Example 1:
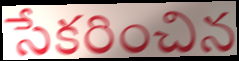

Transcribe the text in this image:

సేకరించిన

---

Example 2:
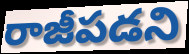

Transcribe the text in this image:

రాజీపడని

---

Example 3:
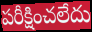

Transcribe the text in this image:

పరీక్షించలేదు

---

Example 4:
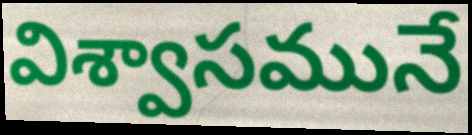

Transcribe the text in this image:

విశ్వాసమునే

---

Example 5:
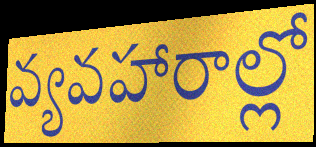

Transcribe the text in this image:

వ్యవహారాల్లో